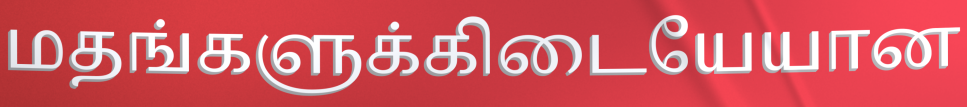
மதங்களுக்கிடையேயான